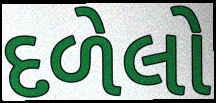
દળેલો